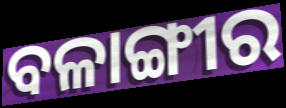
ବଳାଙ୍ଗୀର